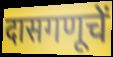
दासगणूचें